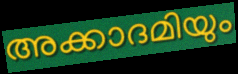
അക്കാദമിയും